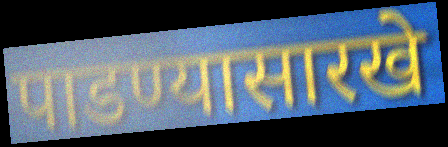
पाडण्यासारखे